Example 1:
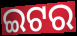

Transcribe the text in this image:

ଇଟର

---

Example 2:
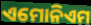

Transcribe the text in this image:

ଏମୋନିଏମ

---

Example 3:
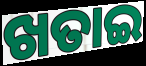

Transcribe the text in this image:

ଖତାଇ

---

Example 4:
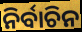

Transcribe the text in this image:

ନିର୍ବାଚିନ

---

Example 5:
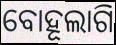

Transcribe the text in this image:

ବୋହୂଲାଗି